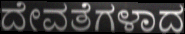
ದೇವತೆಗಳಾದ